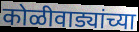
कोळीवाड्यांच्या